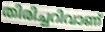
തിരിച്ചറിവാണ്